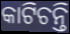
କାଟିଚନ୍ତି